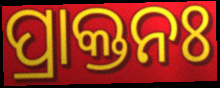
ପ୍ରାକ୍ତନଃ